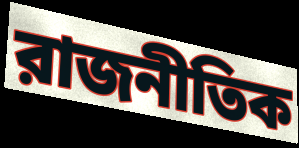
রাজনীতিক